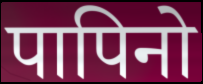
पापिनो